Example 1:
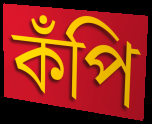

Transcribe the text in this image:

কঁপি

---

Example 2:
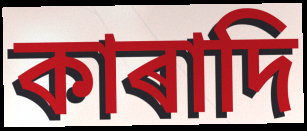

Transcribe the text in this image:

কাৰাদি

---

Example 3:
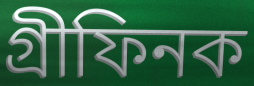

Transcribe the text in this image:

গ্ৰীফিনক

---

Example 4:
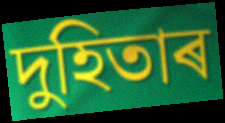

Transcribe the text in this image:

দুহিতাৰ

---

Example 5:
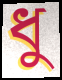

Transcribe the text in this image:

ধু